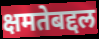
क्षमतेबद्दल